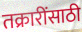
तक्रारींसाठी